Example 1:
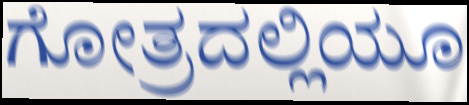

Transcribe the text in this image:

ಗೋತ್ರದಲ್ಲಿಯೂ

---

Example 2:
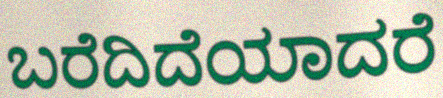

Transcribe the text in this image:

ಬರೆದಿದೆಯಾದರೆ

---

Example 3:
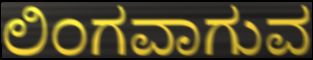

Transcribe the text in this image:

ಲಿಂಗವಾಗುವ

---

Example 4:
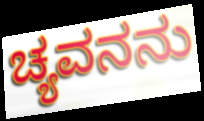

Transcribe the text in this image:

ಚ್ಯವನನು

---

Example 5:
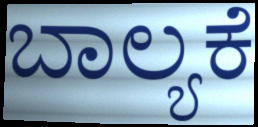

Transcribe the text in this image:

ಬಾಲ್ಯಕೆ